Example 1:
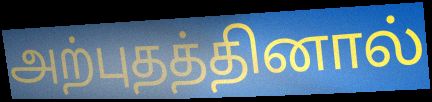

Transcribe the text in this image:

அற்புதத்தினால்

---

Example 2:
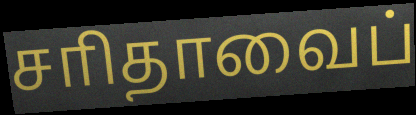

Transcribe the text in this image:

சரிதாவைப்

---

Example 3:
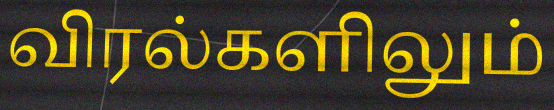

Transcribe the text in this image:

விரல்களிலும்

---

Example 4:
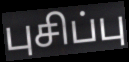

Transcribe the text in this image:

புசிப்பு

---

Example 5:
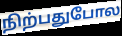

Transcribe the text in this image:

நிற்பதுபோல